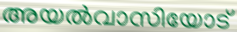
അയൽവാസിയോട്